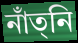
নাঁত্‌নি